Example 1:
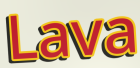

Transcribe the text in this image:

Lava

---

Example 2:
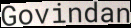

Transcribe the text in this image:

Govindan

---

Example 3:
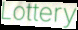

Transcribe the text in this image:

Lottery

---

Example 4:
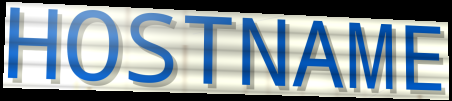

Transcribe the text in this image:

HOSTNAME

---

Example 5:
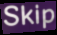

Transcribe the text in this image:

Skip